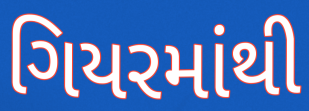
ગિયરમાંથી